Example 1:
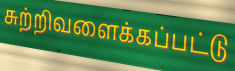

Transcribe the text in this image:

சுற்றிவளைக்கப்பட்டு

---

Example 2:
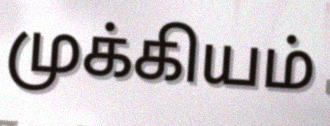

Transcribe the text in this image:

முக்கியம்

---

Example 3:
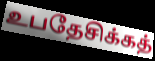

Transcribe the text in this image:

உபதேசிக்கத்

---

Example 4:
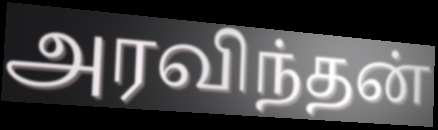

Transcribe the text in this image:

அரவிந்தன்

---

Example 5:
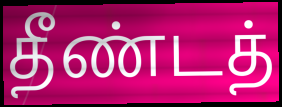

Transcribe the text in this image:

தீண்டத்